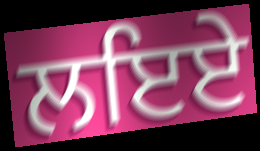
ਲਇਏ